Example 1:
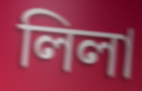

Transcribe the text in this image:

লিলা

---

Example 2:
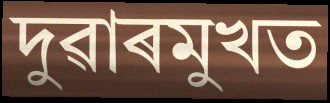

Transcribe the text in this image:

দুৱাৰমুখত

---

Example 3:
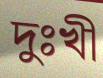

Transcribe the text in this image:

দুঃখী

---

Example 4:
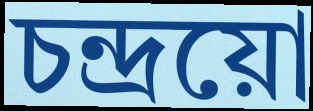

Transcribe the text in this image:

চন্দ্ৰয়ো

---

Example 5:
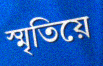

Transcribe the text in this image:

স্মৃতিয়ে